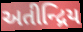
અતીન્દ્રિય